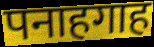
पनाहगाह